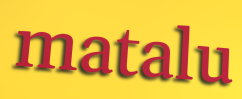
matalu